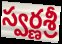
స్వర్ణశ్రీ